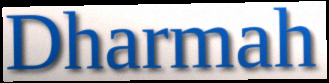
Dharmah